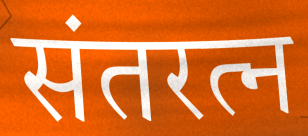
संतरत्न